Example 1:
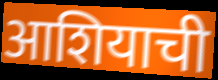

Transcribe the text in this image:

आशियाची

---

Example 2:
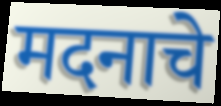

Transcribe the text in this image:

मदनाचे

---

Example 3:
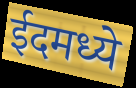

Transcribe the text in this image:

ईदमध्ये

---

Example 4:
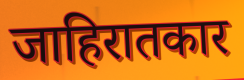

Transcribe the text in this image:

जाहिरातकार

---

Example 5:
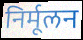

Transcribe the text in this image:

निर्मूलन